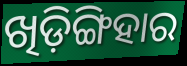
ଖିଡ଼ିଙ୍ଗିହାର